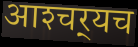
आश्चर्यच